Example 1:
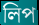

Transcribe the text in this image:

লিপ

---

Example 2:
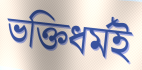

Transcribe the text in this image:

ভক্তিধৰ্মই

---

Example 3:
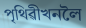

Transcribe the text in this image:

পৃথিৱীখনলৈ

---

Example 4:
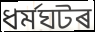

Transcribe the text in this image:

ধৰ্মঘটৰ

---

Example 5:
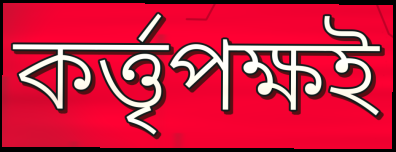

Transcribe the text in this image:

কৰ্ত্তৃপক্ষই